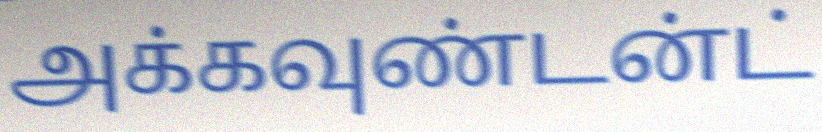
அக்கவுண்டன்ட்